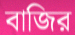
বাজির